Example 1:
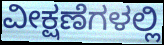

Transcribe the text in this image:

ವೀಕ್ಷಣೆಗಳಲ್ಲಿ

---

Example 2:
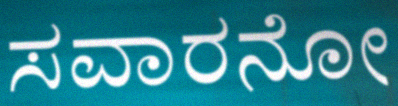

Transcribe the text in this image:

ಸವಾರನೋ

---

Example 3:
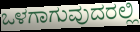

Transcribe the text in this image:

ಒಳಗಾಗುವುದರಲ್ಲಿ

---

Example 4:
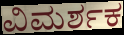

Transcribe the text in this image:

ವಿಮರ್ಶಕ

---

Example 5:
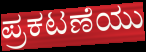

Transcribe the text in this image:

ಪ್ರಕಟಣೆಯು